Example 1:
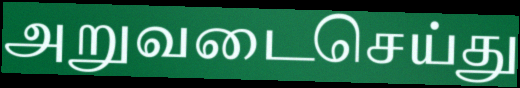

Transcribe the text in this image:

அறுவடைசெய்து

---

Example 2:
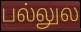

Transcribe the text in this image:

பல்லுல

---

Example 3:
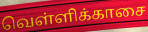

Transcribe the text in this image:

வெள்ளிக்காசை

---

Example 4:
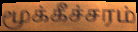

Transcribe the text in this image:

மூக்கீச்சரம்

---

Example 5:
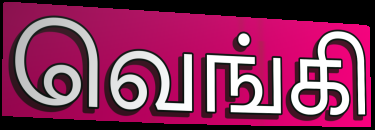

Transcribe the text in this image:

வெங்கி